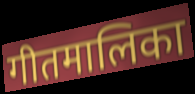
गीतमालिका